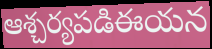
ఆశ్చర్యపడిఈయన